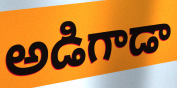
అడిగాడా